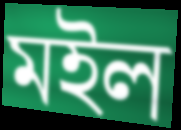
মইল